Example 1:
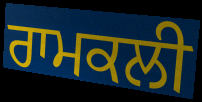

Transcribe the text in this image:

ਰਾਮਕਲੀ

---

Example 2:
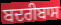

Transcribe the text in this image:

ਬਦਰੀਬਾਸ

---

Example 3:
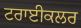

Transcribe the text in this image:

ਟਰਾਈਕਲਰ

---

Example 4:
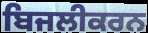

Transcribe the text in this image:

ਬਿਜਲੀਕਰਨ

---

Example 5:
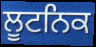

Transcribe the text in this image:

ਲੂਟਨਿਕ